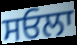
ਸਓਲਾ